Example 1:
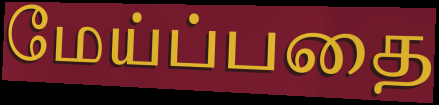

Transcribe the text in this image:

மேய்ப்பதை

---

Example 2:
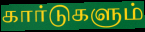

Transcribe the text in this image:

கார்டுகளும்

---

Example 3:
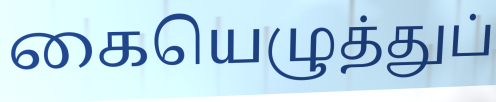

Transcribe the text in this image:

கையெழுத்துப்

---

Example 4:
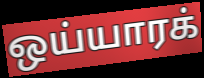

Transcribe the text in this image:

ஒய்யாரக்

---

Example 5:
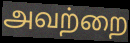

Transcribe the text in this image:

அவற்றை